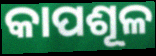
କାପଶୂଳ